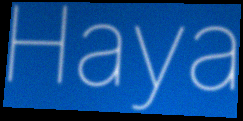
Haya